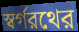
স্বর্গরথের